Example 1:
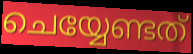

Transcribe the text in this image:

ചെയ്യേണ്ടത്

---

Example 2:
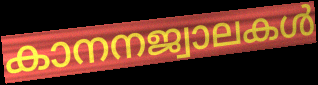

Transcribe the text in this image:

കാനനജ്വാലകൾ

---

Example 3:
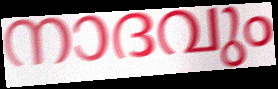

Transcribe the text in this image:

നാദവും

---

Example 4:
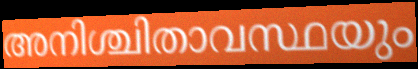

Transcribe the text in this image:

അനിശ്ചിതാവസ്ഥയും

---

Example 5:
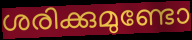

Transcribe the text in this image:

ശരിക്കുമുണ്ടോ